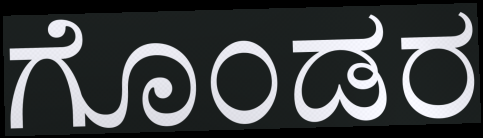
ಗೊಂಡರ